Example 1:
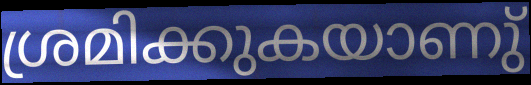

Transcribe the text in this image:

ശ്രമിക്കുകയാണു്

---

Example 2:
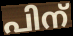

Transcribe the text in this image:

പിന്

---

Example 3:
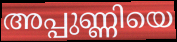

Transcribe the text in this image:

അപ്പുണ്ണിയെ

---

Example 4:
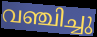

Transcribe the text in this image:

വഞ്ചിച്ചു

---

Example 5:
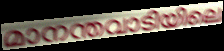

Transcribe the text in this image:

മാനന്തവാടിയിലെ